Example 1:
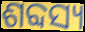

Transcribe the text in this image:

ଶବ୍ଦସ୍ଯ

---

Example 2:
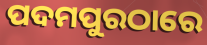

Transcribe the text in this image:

ପଦମପୁରଠାରେ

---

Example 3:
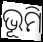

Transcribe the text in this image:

ଭୂମି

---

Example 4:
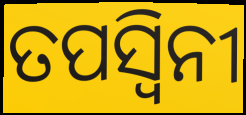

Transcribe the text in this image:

ତପସ୍ଵିନୀ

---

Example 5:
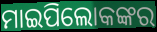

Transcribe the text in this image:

ମାଇପିଲୋକଙ୍କର